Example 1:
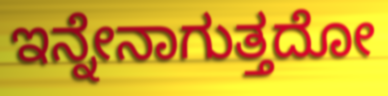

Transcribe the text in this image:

ಇನ್ನೇನಾಗುತ್ತದೋ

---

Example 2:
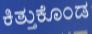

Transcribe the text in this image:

ಕಿತ್ತುಕೊಂಡ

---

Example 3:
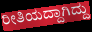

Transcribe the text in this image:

ರೀತಿಯದ್ದಾಗಿದ್ದು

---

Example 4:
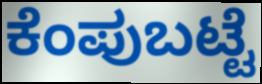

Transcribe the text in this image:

ಕೆಂಪುಬಟ್ಟೆ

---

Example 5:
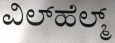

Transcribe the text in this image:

ವಿಲ್‌ಹೆಲ್ಮ್